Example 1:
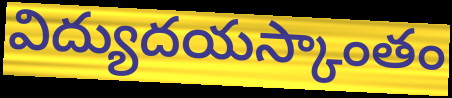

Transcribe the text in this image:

విద్యుదయస్కాంతం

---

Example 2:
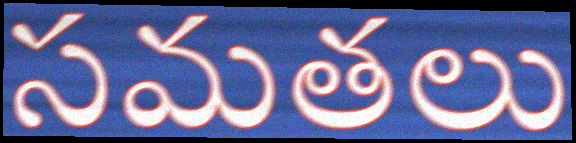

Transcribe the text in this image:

సమతలు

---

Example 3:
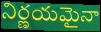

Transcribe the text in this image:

నిర్ణయమైనా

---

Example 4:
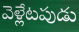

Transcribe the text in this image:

వెళ్లేటపుడు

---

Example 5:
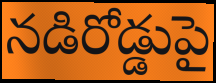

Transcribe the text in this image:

నడిరోడ్డుపై